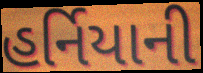
હર્નિયાની